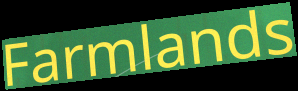
Farmlands